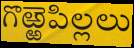
గొఱ్ఱెపిల్లలు